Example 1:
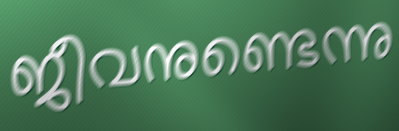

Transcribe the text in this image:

ജീവനുണ്ടെന്നു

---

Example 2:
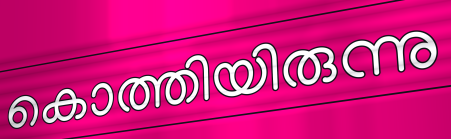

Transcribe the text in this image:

കൊത്തിയിരുന്നു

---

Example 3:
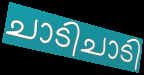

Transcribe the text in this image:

ചാടിചാടി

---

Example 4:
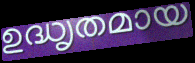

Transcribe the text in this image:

ഉദ്ധൃതമായ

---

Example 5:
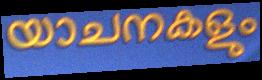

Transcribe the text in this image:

യാചനകളും